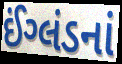
ઈંગ્લંડનાં